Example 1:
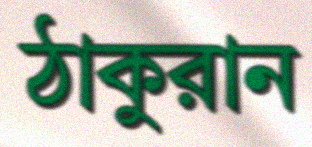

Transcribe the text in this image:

ঠাকুরান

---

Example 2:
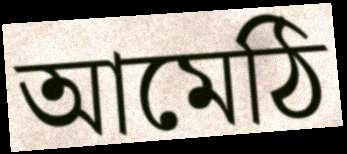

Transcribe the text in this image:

আমেঠি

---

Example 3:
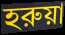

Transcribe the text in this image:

হরুয়া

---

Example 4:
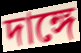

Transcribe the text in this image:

দাঙ্গে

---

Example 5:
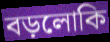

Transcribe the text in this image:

বড়লোকি